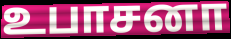
உபாசனா